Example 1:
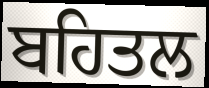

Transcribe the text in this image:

ਬਹਿਤਲ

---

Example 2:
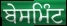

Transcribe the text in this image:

ਬੇਸਮਿੰਟ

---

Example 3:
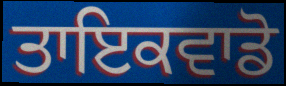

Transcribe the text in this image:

ਤਾਇਕਵਾਡੋ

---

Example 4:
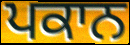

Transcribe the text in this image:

ਪਕਾਨ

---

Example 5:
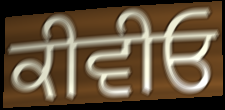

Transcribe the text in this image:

ਕੀਵੀਓ